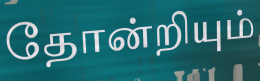
தோன்றியும்